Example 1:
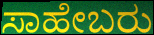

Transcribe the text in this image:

ಸಾಹೇಬರು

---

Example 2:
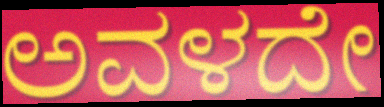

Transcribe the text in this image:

ಅವಳದೇ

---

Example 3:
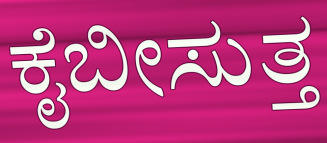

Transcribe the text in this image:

ಕೈಬೀಸುತ್ತ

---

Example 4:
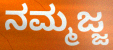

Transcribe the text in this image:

ನಮ್ಮಜ್ಜ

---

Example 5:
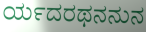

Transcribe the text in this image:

ರ್ಯದರಥನನುನ